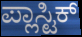
ಪ್ಲಾಸ್ಟಿಕ್